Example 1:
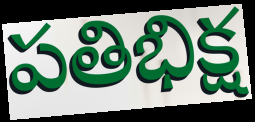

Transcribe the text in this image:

పతిభిక్ష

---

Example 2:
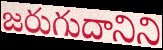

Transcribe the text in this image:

జరుగుదానిని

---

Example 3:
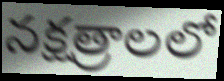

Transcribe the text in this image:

నక్షత్రాలలో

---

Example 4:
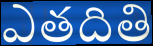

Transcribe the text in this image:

ఎతదితి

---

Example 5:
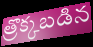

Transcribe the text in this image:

త్రొక్కబడిన